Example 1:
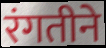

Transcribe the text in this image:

रंगतीने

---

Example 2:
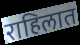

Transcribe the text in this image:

राहिलात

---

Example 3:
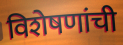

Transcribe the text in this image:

विशेषणांची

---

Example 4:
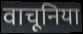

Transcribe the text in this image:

वाचूनिया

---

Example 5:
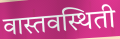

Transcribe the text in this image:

वास्तवस्थिती